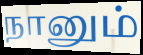
நானும்